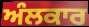
ਅੰਲਕਾਰ